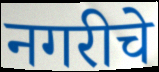
नगरीचे